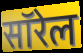
सॉरेल